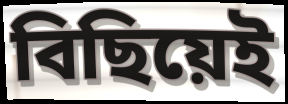
বিছিয়েই